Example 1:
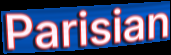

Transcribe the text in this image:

Parisian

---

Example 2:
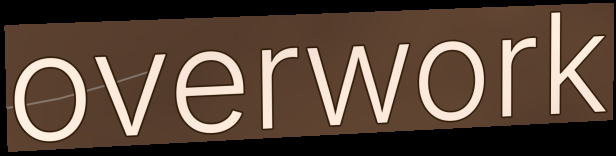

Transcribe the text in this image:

overwork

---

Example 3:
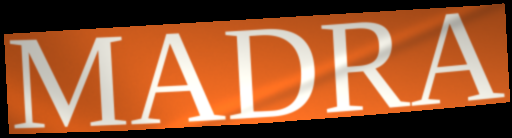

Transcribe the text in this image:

MADRA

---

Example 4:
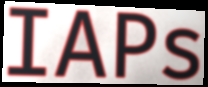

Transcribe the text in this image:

IAPs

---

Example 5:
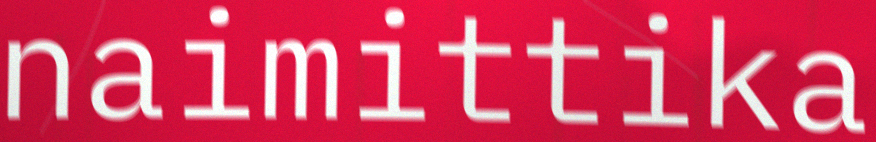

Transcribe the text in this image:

naimittika